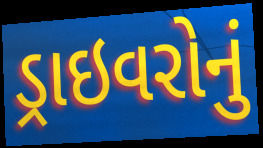
ડ્રાઇવરોનું